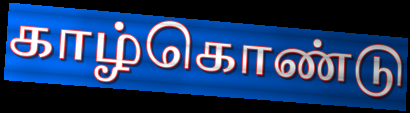
காழ்கொண்டு